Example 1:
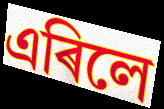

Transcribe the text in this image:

এৰিলে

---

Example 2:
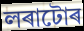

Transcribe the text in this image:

লৰাটোৰ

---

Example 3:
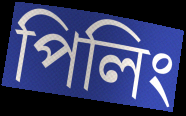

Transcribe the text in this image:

পিলিং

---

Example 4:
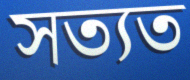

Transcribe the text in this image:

সত্যত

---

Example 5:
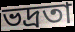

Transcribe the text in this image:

ভদ্ৰতা